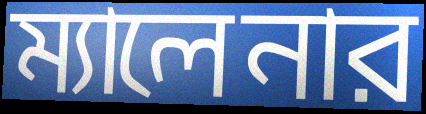
ম্যালেনার